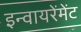
इन्वायरेंमेंट